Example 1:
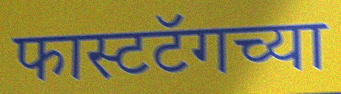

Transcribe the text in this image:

फास्टटॅगच्या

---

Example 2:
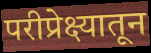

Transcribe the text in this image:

परीप्रेक्ष्यातून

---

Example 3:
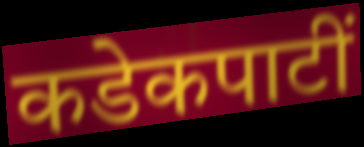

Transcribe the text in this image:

कडेकपाटीं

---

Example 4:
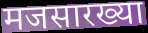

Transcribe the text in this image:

मजसारख्या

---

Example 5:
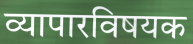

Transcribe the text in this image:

व्यापारविषयक